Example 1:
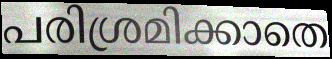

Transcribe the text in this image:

പരിശ്രമിക്കാതെ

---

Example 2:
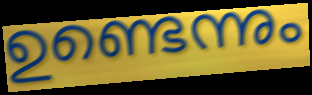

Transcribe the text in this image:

ഉണ്ടെന്നും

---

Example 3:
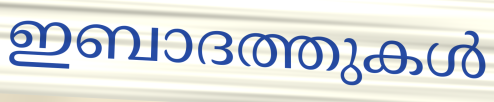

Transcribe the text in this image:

ഇബാദത്തുകൾ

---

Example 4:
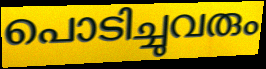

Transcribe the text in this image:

പൊടിച്ചുവരും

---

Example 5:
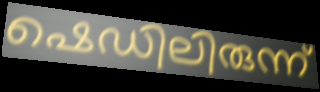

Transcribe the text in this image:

ഷെഡിലിരുന്ന്